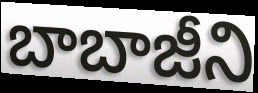
బాబాజీని